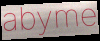
abyme